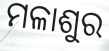
ମଳାଶୁର